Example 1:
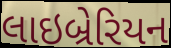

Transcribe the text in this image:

લાઇબ્રેરિયન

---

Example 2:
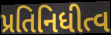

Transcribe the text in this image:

પ્રતિનિધીત્વ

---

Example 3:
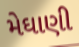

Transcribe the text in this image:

મેઘાણી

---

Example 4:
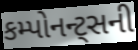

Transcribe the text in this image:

કમ્પોનન્ટ્સની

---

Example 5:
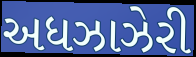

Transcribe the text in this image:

અધઝાઝેરી